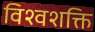
विश्वशक्ति